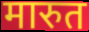
मारुत